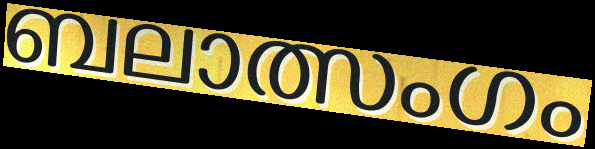
ബലാത്സംഗം